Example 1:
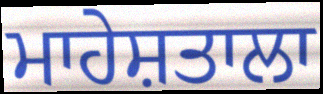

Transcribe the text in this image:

ਮਾਹੇਸ਼ਤਾਲਾ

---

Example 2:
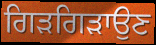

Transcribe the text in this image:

ਗਿੜਗਿੜਾਉਣ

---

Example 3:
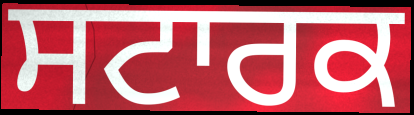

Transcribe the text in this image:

ਸਟਾਰਕ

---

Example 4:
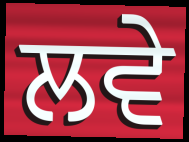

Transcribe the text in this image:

ਲਵੇ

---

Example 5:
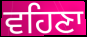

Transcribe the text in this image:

ਵਹਿਣਾ